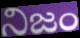
నిజం